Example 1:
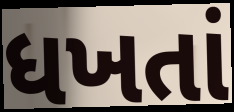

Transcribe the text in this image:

ધખતાં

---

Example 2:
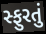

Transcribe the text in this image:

સ્ફુરતું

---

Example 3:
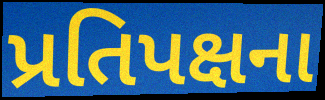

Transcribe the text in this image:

પ્રતિપક્ષના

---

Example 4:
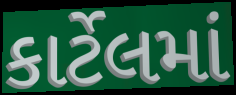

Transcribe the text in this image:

કાર્ટેલમાં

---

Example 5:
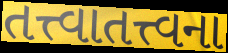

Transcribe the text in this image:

તત્ત્વાતત્ત્વના